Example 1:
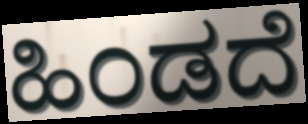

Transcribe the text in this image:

ಹಿಂಡದೆ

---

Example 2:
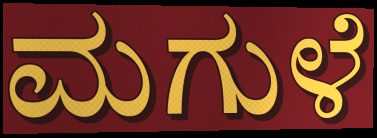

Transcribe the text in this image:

ಮಗುಳೆ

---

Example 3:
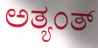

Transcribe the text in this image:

ಅತ್ಯಂತ್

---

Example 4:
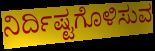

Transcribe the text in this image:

ನಿರ್ದಿಷ್ಟಗೊಳಿಸುವ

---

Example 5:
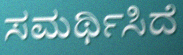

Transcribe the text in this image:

ಸಮರ್ಥಿಸಿದೆ